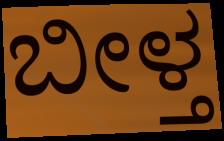
ಬೀಳ್ತ